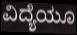
ವಿದ್ಯೆಯೂ